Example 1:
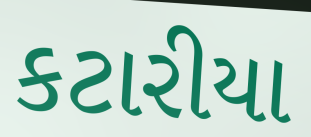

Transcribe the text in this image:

કટારીયા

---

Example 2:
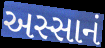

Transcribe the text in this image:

અસ્સાનં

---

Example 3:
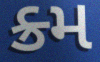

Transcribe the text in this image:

ક્ર્મ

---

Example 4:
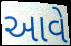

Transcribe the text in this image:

આવે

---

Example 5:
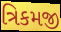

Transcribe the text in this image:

ત્રિકમજી